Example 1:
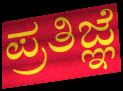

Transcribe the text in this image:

ಪ್ರತಿಜ್ಞೆ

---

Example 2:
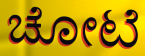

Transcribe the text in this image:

ಚೋಟೆ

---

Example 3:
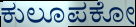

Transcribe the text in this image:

ಕುಲೂಪಕೋ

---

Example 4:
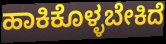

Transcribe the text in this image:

ಹಾಕಿಕೊಳ್ಳಬೇಕಿದೆ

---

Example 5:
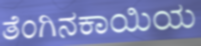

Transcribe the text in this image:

ತೆಂಗಿನಕಾಯಿಯ